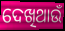
ଦେଖିଥାଉଁ